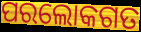
ପରଲୋକଗତ